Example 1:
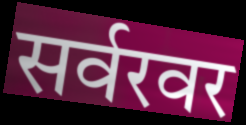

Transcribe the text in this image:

सर्वरवर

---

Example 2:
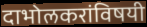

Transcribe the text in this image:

दाभोलकरांविषयी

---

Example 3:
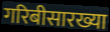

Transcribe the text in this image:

गरिबीसारख्या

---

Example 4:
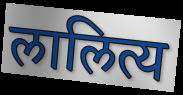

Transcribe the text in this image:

लालित्य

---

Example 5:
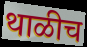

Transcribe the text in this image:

थाळीच